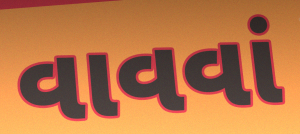
વાવવાં